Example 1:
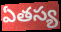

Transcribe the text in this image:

ఏతస్య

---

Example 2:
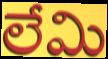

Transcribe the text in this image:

లేమి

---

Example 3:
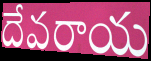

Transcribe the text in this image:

దేవరాయ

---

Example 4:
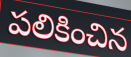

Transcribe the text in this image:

పలికించిన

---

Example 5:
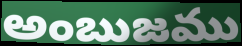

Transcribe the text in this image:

అంబుజము